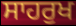
ਸਾਹਰੁਖ